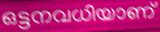
ഒട്ടനവധിയാണ്